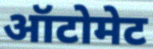
ऑटोमेट